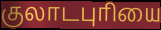
குலாடபுரியை